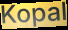
Kopal